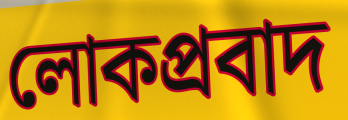
লোকপ্রবাদ